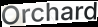
Orchard